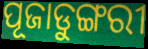
ପୂଜାଡୁଙ୍ଗରୀ